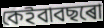
কেইবাবছৰো